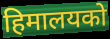
हिमालयको